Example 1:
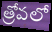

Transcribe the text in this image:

త్రోవలో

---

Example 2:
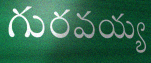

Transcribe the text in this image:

గురవయ్య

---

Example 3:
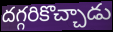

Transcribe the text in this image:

దగ్గరికొచ్చాడు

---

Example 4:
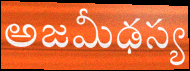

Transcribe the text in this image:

అజమీఢస్య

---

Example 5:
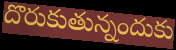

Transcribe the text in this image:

దొరుకుతున్నందుకు